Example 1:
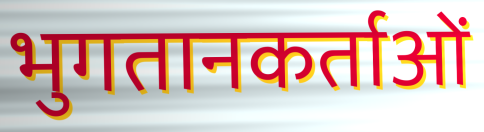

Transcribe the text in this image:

भुगतानकर्ताओं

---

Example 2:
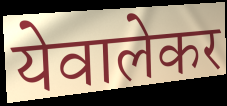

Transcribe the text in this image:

येवालेकर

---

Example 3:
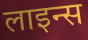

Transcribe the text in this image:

लाइन्स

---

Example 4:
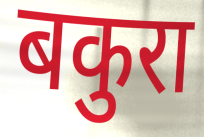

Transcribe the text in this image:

बकुरा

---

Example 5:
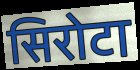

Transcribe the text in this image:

सिरोटा